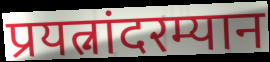
प्रयत्नांदरम्यान